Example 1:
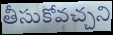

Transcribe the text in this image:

తీసుకోవచ్చని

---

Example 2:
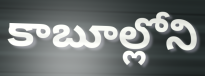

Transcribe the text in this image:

కాబూల్లోని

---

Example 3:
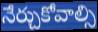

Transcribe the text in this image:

నేర్చుకోవాల్సి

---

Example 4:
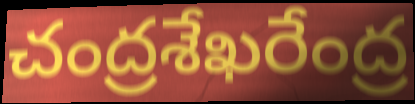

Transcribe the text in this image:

చంద్రశేఖరేంద్ర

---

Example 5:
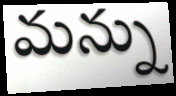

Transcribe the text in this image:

మన్ను